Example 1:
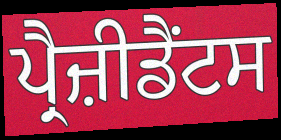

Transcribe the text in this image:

ਪ੍ਰੈਜ਼ੀਡੈਂਟਸ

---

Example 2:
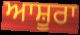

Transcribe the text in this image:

ਆਸ਼ੂਰਾ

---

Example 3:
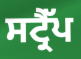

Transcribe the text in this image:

ਸਟ੍ਰੈੱਪ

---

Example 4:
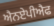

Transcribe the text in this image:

ਐਨਏਪੀਐਫ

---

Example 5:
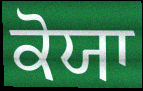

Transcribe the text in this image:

ਕੋਯਾ